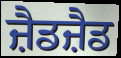
ਜ਼ੈਡਜ਼ੈਡ